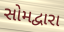
સોમદ્વારા